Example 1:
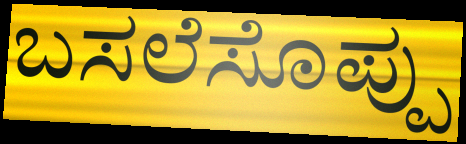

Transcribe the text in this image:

ಬಸಲೆಸೊಪ್ಪು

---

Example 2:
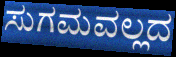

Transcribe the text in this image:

ಸುಗಮವಲ್ಲದ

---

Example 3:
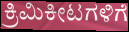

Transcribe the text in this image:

ಕ್ರಿಮಿಕೀಟಗಳಿಗೆ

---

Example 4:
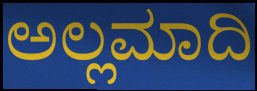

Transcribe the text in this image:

ಅಲ್ಲಮಾದಿ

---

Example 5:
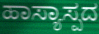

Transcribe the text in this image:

ಹಾಸ್ಯಾಸ್ಪದ